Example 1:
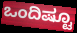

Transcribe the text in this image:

ಒಂದಿಷ್ಟೂ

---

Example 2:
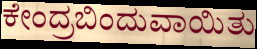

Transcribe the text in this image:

ಕೇಂದ್ರಬಿಂದುವಾಯಿತು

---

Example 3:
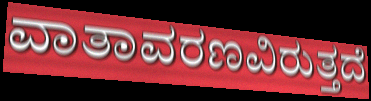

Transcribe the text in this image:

ವಾತಾವರಣವಿರುತ್ತದೆ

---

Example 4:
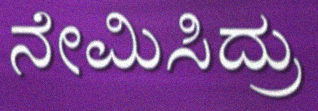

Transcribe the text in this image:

ನೇಮಿಸಿದ್ರು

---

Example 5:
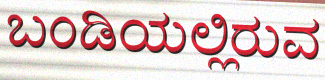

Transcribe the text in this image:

ಬಂಡಿಯಲ್ಲಿರುವ